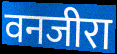
वनजीरा